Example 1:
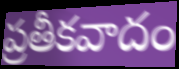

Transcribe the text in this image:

ప్రతీకవాదం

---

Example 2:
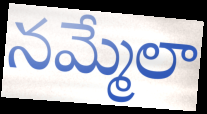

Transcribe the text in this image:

నమ్మేలా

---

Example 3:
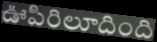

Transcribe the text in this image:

ఊపిరిలూదింది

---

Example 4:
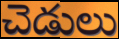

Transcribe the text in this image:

చెడులు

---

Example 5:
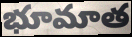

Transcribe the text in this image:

భూమాత